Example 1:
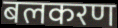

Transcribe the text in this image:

बलकरण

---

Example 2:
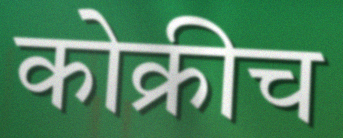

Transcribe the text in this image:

कोक्रीच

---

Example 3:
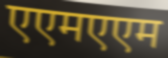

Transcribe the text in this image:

एएमएएम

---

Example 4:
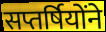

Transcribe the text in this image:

सप्तर्षियोंने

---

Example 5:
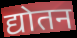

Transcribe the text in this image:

द्योतन